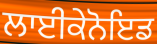
ਲਾਈਕੇਨੋਇਡ